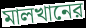
মালখানের